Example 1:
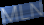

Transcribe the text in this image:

MLN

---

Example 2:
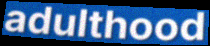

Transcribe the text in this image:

adulthood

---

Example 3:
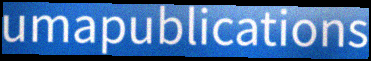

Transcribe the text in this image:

umapublications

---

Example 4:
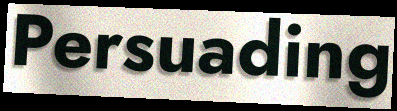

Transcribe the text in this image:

Persuading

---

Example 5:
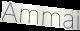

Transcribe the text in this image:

Ammai